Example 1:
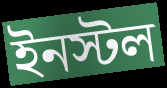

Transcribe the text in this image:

ইনস্টল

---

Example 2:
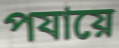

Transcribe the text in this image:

পযায়ে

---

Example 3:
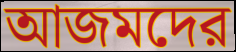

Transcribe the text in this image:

আজমদের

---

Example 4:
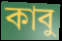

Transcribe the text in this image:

কাবু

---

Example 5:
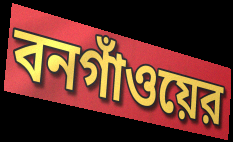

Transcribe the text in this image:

বনগাঁওয়ের